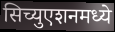
सिच्युएशनमध्ये